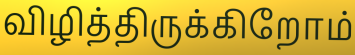
விழித்திருக்கிறோம்